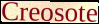
Creosote